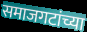
समाजगटांच्या